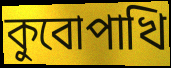
কুবোপাখি